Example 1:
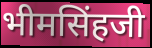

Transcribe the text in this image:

भीमसिंहजी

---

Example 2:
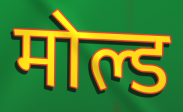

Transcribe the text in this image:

मोल्ड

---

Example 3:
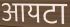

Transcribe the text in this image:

आयटा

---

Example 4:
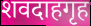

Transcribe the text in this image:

शवदाहगृह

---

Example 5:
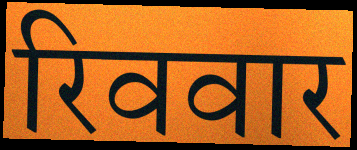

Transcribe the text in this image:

रिववार